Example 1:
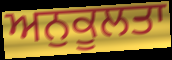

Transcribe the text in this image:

ਅਨੁਕੂਲਤਾ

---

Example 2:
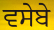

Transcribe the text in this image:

ਵਸੇਬੇ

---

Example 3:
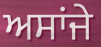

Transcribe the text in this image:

ਅਸਾਂਜੇ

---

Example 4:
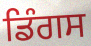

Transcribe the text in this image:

ਡਿੰਗਸ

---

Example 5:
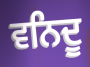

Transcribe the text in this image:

ਵਨਿਦੂ